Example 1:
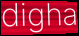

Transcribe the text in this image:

digha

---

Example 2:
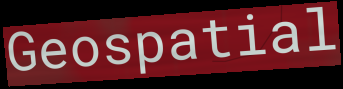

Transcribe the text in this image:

Geospatial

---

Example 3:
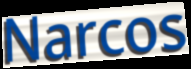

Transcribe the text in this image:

Narcos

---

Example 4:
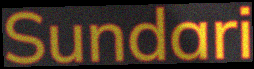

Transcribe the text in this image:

Sundari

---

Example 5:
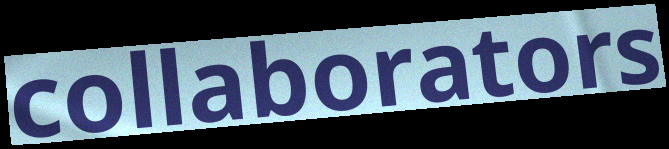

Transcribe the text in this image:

collaborators